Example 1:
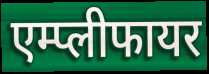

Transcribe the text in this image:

एम्प्लीफायर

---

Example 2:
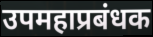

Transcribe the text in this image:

उपमहाप्रबंधक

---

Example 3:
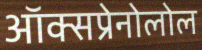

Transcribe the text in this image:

ऑक्सप्रेनोलोल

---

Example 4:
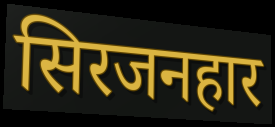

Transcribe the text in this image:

सिरजनहार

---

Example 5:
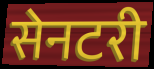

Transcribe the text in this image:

सेनटरी